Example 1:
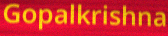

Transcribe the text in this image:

Gopalkrishna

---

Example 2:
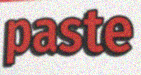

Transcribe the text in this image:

paste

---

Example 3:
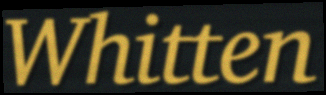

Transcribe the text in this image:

Whitten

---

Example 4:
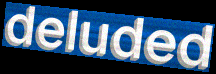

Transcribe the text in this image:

deluded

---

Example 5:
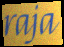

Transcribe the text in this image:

raja